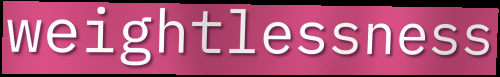
weightlessness